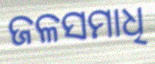
ଜଳସମାଧି